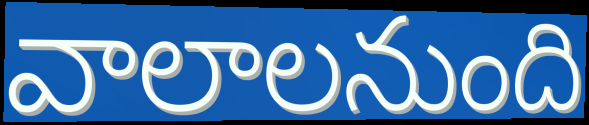
వాలాలనుంది